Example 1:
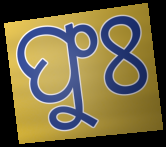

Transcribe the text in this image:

ଫୁଃ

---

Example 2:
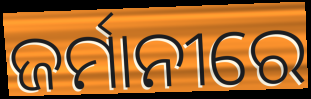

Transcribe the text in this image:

ଜର୍ମାନୀରେ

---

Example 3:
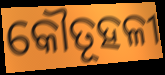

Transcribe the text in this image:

କୌତୂହଳୀ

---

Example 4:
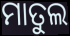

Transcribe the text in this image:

ମାତୁଲ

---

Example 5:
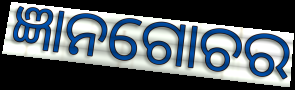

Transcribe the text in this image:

ଜ୍ଞାନଗୋଚର